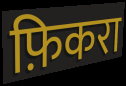
फ़िकरा